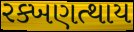
રક્ખણત્થાય